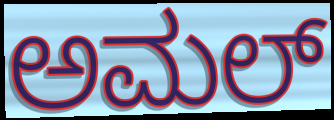
ಅಮಲ್